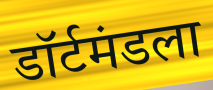
डॉर्टमंडला